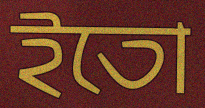
ইতো